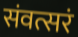
संवत्सरं